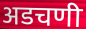
अडचणी